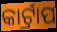
କାର୍ଟ୍ରାପ